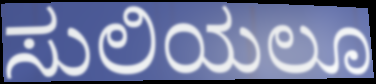
ಸುಲಿಯಲೂ